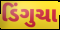
ડિંગુચા